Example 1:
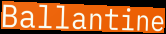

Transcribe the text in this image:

Ballantine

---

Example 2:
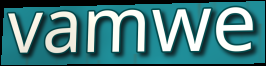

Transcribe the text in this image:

vamwe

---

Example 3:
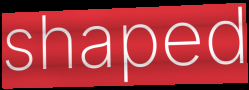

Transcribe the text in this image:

shaped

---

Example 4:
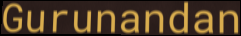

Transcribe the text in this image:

Gurunandan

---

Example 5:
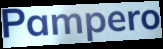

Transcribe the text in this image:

Pampero